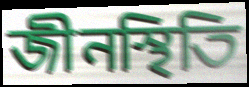
জীনস্থিতি